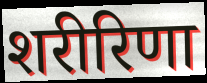
शरीरिणा